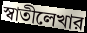
স্বাতীলেখার